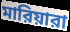
মারিয়ারা